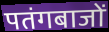
पतंगबाजों